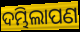
ଦମ୍ଭିଲାପଣ